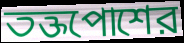
তক্তপোশের